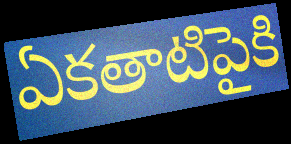
ఏకతాటిపైకి